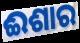
ଈଶାର